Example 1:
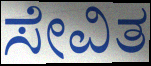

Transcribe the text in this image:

ಸೇವಿತ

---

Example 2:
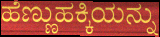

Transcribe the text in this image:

ಹೆಣ್ಣುಹಕ್ಕಿಯನ್ನು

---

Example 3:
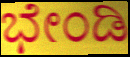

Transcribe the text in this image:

ಭೇಂಡಿ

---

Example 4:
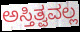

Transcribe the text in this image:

ಅಸ್ತಿತ್ವವಲ್ಲ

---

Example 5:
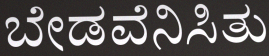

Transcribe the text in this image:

ಬೇಡವೆನಿಸಿತು